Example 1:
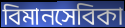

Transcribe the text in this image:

বিমানসেবিকা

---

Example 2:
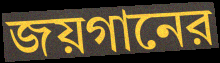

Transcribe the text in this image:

জয়গানের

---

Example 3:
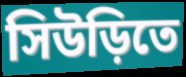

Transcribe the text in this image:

সিউড়িতে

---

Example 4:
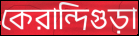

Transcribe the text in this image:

কেরান্দিগুড়া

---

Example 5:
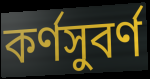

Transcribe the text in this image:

কর্ণসুবর্ণ